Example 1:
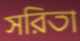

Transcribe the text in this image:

সরিতা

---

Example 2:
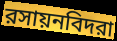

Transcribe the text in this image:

রসায়নবিদরা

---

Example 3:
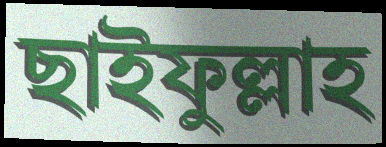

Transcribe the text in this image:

ছাইফুল্লাহ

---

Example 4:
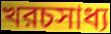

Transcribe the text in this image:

খরচসাধ্য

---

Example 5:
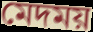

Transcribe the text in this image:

মেদময়